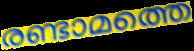
രണ്ടാമത്തെ